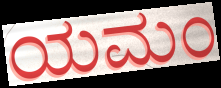
ಯಮಂ